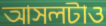
আসলটাও